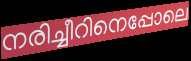
നരിച്ചീറിനെപ്പോലെ